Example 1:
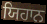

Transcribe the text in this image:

ਯਿਹਾਨ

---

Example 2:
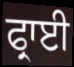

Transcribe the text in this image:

ਫ੍ਰਾਈ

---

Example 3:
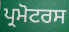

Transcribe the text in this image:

ਪ੍ਰਮੋਟਰਸ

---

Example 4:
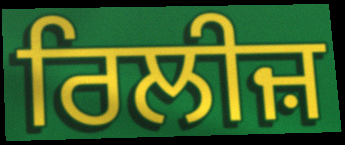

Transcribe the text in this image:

ਰਿਲੀਜ਼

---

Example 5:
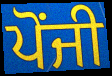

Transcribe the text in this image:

ਪੋਂਜੀ